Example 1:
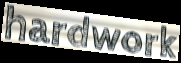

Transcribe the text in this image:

hardwork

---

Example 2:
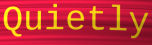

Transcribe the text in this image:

Quietly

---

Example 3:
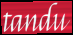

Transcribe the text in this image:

tandu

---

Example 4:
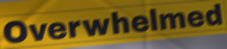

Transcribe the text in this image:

Overwhelmed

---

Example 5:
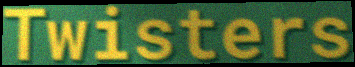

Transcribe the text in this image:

Twisters